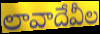
లావాదేవీల